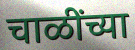
चाळींच्या